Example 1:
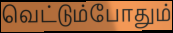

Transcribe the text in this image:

வெட்டும்போதும்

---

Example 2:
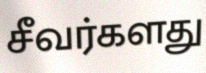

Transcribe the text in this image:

சீவர்களது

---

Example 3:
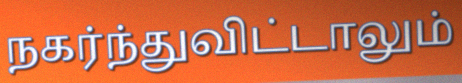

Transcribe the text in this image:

நகர்ந்துவிட்டாலும்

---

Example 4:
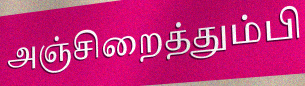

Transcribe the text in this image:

அஞ்சிறைத்தும்பி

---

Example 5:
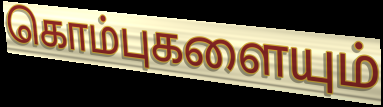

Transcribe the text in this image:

கொம்புகளையும்